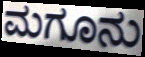
ಮಗೂನು